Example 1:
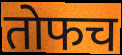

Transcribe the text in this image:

तोफच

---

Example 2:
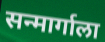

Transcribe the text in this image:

सन्मार्गाला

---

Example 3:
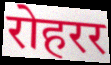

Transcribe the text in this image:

रोहरर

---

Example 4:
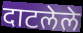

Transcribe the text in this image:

दाटलेले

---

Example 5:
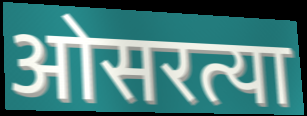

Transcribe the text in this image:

ओसरत्या